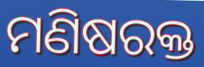
ମଣିଷରକ୍ତ